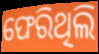
ଫେରିଥିଲି